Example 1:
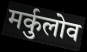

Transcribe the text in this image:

मर्कुलोव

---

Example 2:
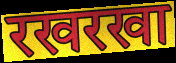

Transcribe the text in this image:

रखरखा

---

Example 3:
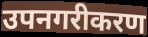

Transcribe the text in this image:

उपनगरीकरण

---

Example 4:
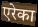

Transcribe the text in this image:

एरेका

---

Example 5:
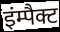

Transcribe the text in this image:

इंम्पैक्ट